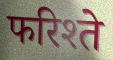
फरिश्ते